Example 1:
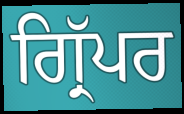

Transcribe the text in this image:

ਗ੍ਰਿੱਪਰ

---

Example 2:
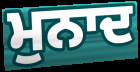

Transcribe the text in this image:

ਮੁਨਾਦ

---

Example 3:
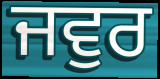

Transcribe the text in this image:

ਜਵੁਰ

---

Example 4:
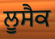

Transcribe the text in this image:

ਲੂਸੈਕ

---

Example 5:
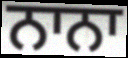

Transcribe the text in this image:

ਨਾਨਾ